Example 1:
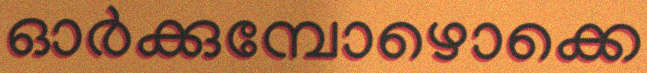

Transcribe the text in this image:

ഓർക്കുമ്പോഴൊക്കെ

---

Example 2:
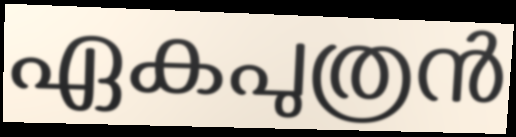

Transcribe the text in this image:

ഏകപുത്രൻ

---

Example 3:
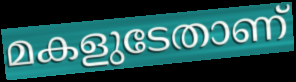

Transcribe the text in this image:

മകളുടേതാണ്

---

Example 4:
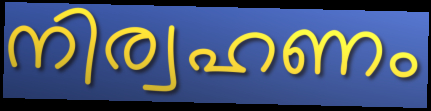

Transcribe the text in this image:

നിര്വഹണം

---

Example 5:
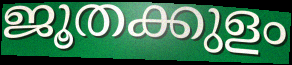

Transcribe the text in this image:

ജൂതക്കുളം